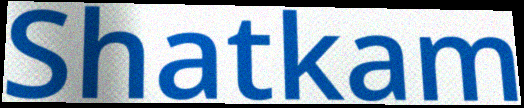
Shatkam